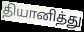
தியானித்து